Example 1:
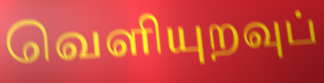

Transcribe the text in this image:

வெளியுறவுப்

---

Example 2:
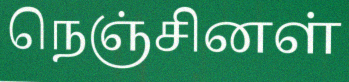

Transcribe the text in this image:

நெஞ்சினள்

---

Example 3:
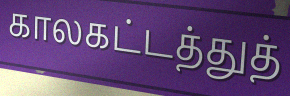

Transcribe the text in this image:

காலகட்டத்துத்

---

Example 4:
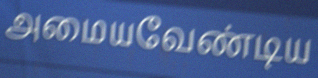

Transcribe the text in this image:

அமையவேண்டிய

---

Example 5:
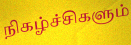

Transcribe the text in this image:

நிகழ்ச்சிகளும்